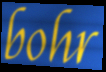
bohr